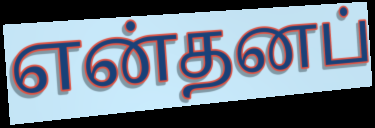
என்தனப்